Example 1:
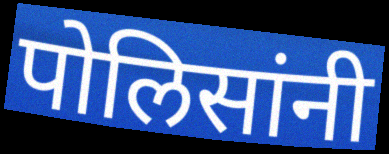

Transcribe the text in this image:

पोलिसांनी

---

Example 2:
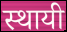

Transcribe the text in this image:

स्थायी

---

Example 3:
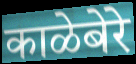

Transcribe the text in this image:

काळेबेरे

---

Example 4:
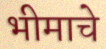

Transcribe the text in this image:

भीमाचे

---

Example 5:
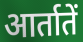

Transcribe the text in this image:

आर्तातें